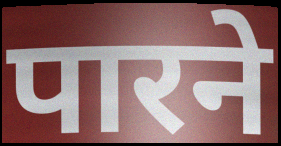
पारने